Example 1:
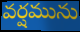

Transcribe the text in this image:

వర్షమును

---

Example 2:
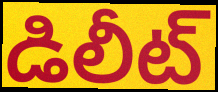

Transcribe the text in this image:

డిలీట్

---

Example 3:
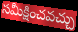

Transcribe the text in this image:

సమీక్షించవచ్చు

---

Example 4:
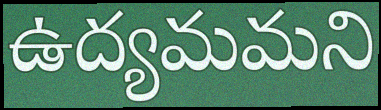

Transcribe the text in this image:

ఉద్యమమని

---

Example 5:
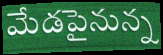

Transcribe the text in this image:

మేడపైనున్న